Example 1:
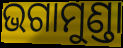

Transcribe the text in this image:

ଭଗାମୁଣ୍ଡା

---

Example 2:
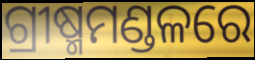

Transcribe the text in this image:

ଗ୍ରୀଷ୍ମମଣ୍ଡଳରେ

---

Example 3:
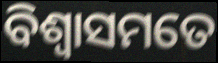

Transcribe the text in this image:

ବିଶ୍ୱାସମତେ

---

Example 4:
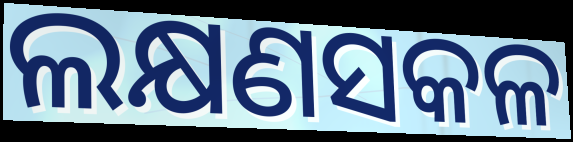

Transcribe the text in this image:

ଲକ୍ଷଣସକଳ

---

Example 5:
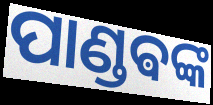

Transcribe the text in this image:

ପାଣ୍ଡଵଙ୍କ